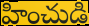
హించుడి